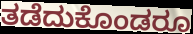
ತಡೆದುಕೊಂಡರೂ